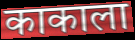
काकाला